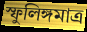
স্ফুলিঙ্গমাত্র